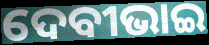
ଦେବୀଭାଇ